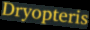
Dryopteris